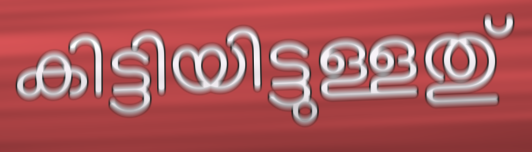
കിട്ടിയിട്ടുള്ളതു്